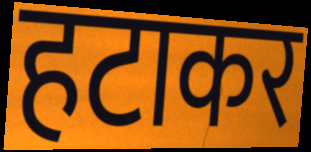
हटाकर